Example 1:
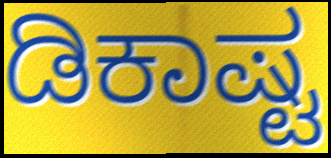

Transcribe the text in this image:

ಡಿಕಾಷ್ಟ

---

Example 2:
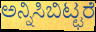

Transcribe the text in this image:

ಅನ್ನಿಸಿಬಿಟ್ಟರೆ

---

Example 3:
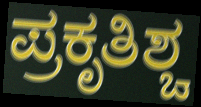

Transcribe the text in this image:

ಪ್ರಕೃತಿಶ್ಚ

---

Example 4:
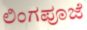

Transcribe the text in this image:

ಲಿಂಗಪೂಜೆ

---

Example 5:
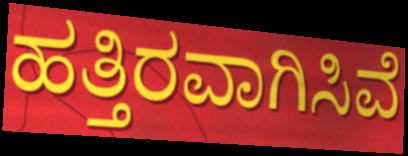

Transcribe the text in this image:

ಹತ್ತಿರವಾಗಿಸಿವೆ